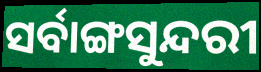
ସର୍ବାଙ୍ଗସୁନ୍ଦରୀ